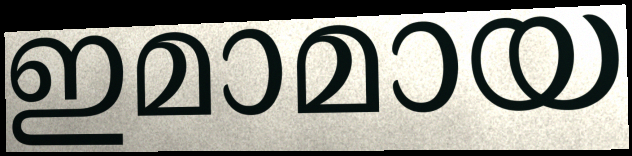
ഇമാമായ